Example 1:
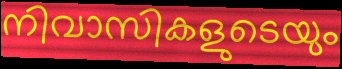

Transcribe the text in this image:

നിവാസികളുടെയും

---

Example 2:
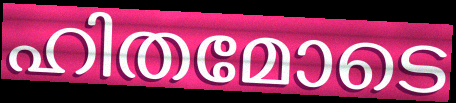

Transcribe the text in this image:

ഹിതമോടെ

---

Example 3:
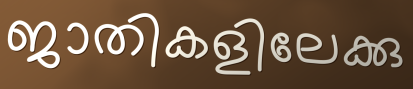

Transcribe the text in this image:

ജാതികളിലേക്കു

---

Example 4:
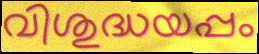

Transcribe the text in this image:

വിശുദ്ധയപ്പം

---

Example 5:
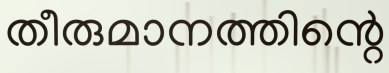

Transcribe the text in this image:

തീരുമാനത്തിന്റെ